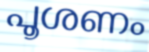
പൂശണം